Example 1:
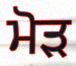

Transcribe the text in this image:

ਮੋੜ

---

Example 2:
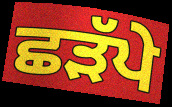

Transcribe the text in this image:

ਛੜੱਪੇ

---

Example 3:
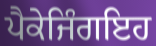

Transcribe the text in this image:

ਪੈਕੇਜਿੰਗਇਹ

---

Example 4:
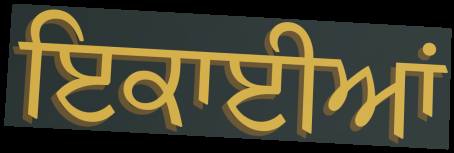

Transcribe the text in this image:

ਇਕਾਈਆਂ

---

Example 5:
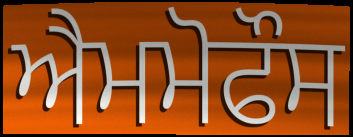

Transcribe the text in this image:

ਐਮਮੋਫੌਸ